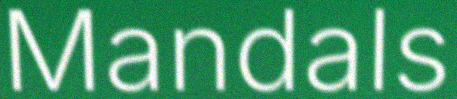
Mandals